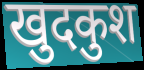
खुदकुश